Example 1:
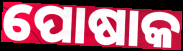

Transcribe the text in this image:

ପୋଷାକ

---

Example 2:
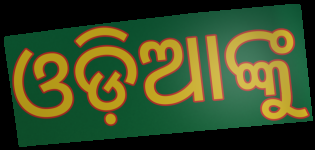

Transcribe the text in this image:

ଓଡ଼ିଆଙ୍କୁ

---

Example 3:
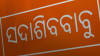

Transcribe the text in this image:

ସଦାଶିବବାବୁ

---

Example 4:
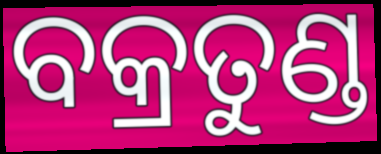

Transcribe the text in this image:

ବକ୍ରତୁଣ୍ଡ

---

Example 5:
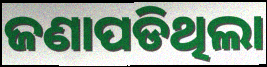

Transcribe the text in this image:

ଜଣାପଡିଥିଲା